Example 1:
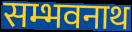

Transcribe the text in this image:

सम्भवनाथ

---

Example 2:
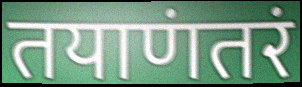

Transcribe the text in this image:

तयाणंतरं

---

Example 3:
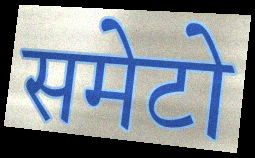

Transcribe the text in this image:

समेटो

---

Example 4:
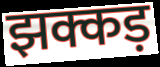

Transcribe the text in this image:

झक्कड़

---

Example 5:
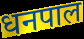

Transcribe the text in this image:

धनपाल